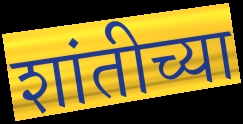
शांतीच्या